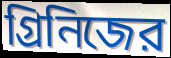
গ্রিনিজের